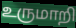
உருமாறி